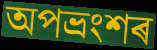
অপভ্ৰংশৰ